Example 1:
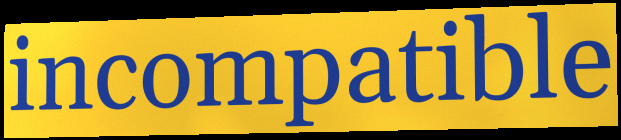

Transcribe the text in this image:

incompatible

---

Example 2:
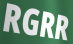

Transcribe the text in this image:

RGRR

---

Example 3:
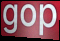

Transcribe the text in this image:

gop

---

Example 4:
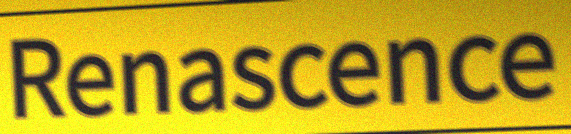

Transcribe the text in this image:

Renascence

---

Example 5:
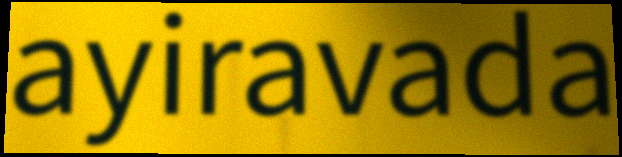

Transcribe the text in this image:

ayiravada